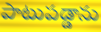
పాటుపడ్డాను